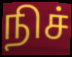
நிச்